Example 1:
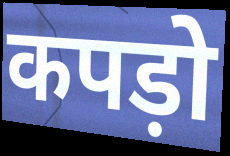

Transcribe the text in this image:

कपड़ो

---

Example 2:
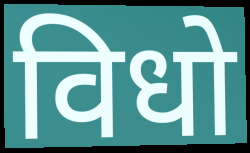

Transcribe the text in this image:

विधो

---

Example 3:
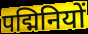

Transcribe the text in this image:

पद्मिनियों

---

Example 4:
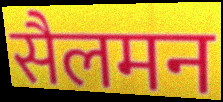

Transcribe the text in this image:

सैलमन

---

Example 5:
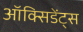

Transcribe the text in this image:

ऑक्सिडेंट्स